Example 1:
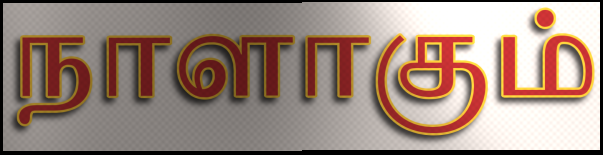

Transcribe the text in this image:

நாளாகும்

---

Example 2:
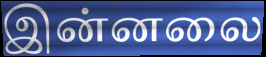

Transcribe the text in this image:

இன்னலை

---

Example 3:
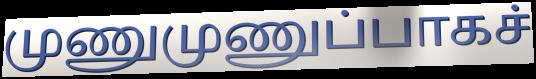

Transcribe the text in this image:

முணுமுணுப்பாகச்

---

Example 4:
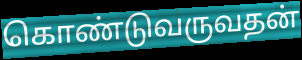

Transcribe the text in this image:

கொண்டுவருவதன்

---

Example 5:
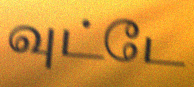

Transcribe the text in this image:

வுட்டே